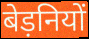
बेड़नियों